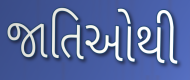
જાતિઓથી